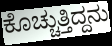
ಕೊಚ್ಚುತ್ತಿದ್ದನು